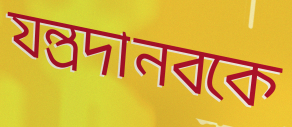
যন্ত্রদানবকে